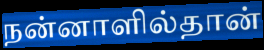
நன்னாளில்தான்